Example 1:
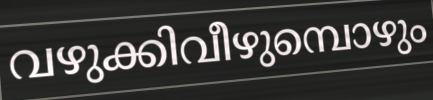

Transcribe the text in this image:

വഴുക്കിവീഴുമ്പൊഴും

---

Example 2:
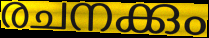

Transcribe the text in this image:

രചനക്കും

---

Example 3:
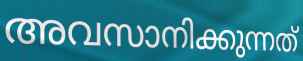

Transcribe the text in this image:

അവസാനിക്കുന്നത്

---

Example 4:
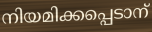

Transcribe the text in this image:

നിയമിക്കപ്പെടാന്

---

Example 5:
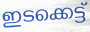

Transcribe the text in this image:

ഇടക്കെട്ട്